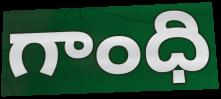
గాంధి